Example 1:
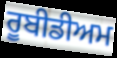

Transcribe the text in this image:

ਰੂਬੀਡੀਅਮ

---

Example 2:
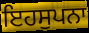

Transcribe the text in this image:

ਇਹਸੁਪਨਾ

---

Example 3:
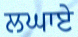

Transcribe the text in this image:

ਲਘਾਏ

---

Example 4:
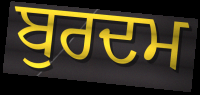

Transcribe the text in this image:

ਬੁਰਦਮ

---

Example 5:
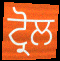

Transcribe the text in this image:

ਟ੍ਰੋਲ